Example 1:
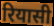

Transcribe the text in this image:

रियासी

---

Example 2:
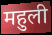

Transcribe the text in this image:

महुली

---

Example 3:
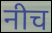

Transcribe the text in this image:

नीच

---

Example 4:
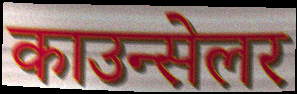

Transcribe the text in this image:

काउन्सेलर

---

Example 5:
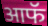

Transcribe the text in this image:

आफॅ